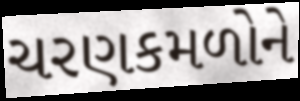
ચરણકમળોને